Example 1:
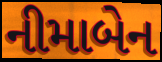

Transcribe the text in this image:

નીમાબેન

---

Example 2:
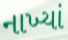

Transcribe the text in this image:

નાખ્યાં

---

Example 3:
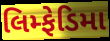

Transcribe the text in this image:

લિમ્ફેડિમા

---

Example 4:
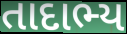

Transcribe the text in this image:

તાદાભ્ય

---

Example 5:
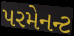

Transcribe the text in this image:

પરમેનન્ટ